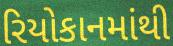
રિયોકાનમાંથી